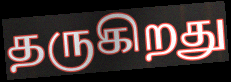
தருகிறது